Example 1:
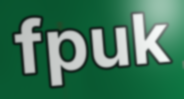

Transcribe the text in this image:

fpuk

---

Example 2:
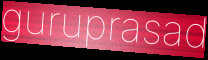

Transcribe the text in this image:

guruprasad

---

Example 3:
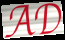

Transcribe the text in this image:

AD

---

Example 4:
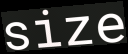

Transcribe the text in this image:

size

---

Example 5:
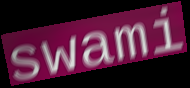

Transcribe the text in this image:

swami